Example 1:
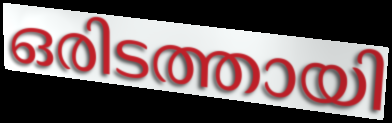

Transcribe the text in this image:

ഒരിടത്തായി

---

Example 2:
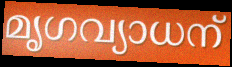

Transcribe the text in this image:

മൃഗവ്യാധന്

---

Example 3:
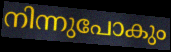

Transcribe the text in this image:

നിന്നുപോകും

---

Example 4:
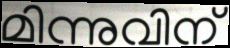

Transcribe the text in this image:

മിന്നുവിന്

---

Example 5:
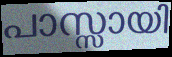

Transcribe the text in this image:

പാസ്സായി